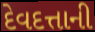
દેવદત્તાની